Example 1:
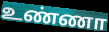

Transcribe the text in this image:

உண்ணா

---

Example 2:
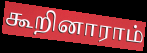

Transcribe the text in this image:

கூறினாராம்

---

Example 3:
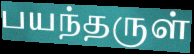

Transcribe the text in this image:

பயந்தருள்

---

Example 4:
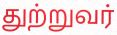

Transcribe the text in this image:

துற்றுவர்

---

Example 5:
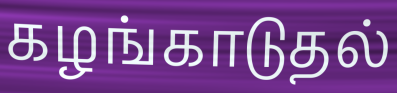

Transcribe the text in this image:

கழங்காடுதல்